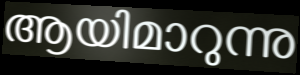
ആയിമാറുന്നു